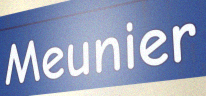
Meunier